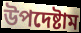
উপদেষ্টাম